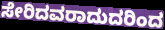
ಸೇರಿದವರಾದುದರಿಂದ